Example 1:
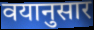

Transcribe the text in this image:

वयानुसार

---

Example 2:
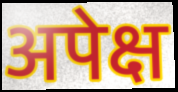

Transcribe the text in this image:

अपेक्ष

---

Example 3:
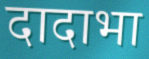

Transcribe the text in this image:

दादाभा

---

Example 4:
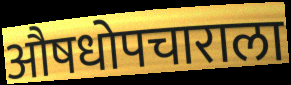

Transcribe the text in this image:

औषधोपचाराला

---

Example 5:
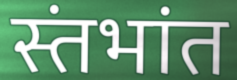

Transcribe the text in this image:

स्तंभांत